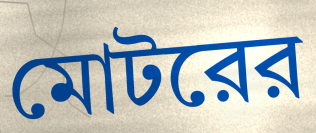
মোটরের